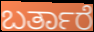
ಬರ್ತಾರೆ